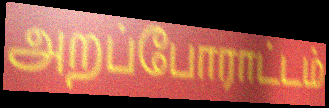
அறப்போராட்டம்